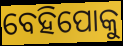
ବେହିପୋକୁ